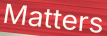
Matters